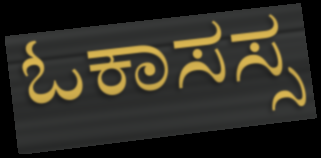
ಓಕಾಸಸ್ಸ